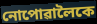
নোপোৱালৈকে